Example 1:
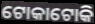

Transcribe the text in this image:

ଟୋକାଟୋକି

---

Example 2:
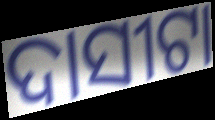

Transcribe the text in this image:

ଦାସୀଟା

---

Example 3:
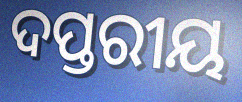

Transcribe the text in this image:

ଦପ୍ତରୀୟ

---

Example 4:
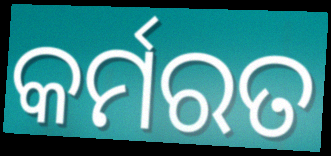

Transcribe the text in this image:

କର୍ମରତ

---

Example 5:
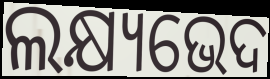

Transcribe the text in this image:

ଲକ୍ଷ୍ୟଭେଦ